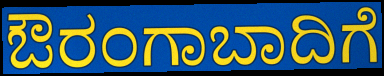
ಔರಂಗಾಬಾದಿಗೆ